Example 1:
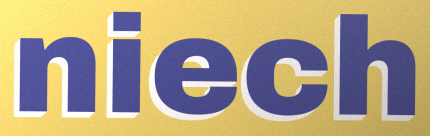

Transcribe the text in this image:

niech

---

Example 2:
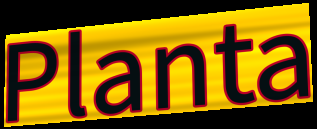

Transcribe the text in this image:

Planta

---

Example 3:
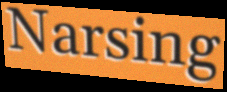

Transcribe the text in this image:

Narsing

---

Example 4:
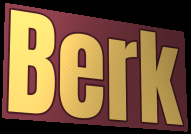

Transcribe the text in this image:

Berk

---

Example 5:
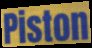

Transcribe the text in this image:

Piston